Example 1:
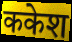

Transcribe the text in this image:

ककेश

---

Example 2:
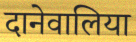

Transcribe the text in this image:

दानेवालिया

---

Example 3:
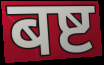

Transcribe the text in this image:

बष्ट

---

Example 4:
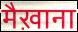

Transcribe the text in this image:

मैख़ाना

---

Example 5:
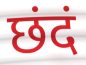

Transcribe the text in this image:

छंदं